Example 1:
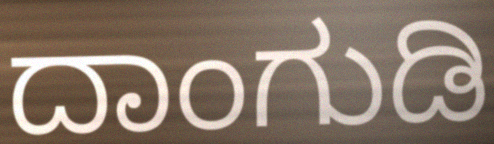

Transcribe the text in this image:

ದಾಂಗುಡಿ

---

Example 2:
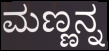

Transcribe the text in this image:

ಮಣ್ಣನ್ನ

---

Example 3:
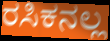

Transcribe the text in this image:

ರಸಿಕನಲ್ಲ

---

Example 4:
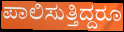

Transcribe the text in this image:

ಪಾಲಿಸುತ್ತಿದ್ದರೂ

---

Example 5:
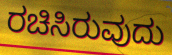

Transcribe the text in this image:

ರಚಿಸಿರುವುದು